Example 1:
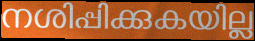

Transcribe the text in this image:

നശിപ്പിക്കുകയില്ല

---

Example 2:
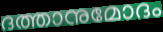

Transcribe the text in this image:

ദത്താനുമോദം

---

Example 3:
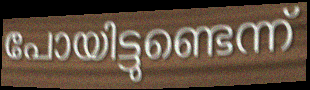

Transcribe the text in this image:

പോയിട്ടുണ്ടെന്ന്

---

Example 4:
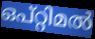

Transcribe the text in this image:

ഒപ്റ്റിമൽ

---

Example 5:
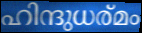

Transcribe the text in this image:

ഹിന്ദുധര്മം